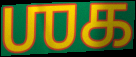
ஶக